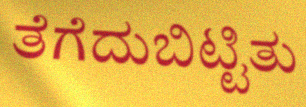
ತೆಗೆದುಬಿಟ್ಟಿತು